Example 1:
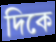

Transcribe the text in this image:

দিকে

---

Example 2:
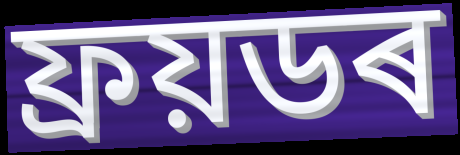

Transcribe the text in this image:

ফ্ৰয়ডৰ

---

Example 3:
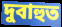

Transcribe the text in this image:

দুবাহুত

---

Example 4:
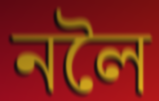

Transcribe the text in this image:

নলৈ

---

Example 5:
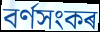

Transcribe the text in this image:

বৰ্ণসংকৰ